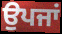
ਉਪਜਾਂ